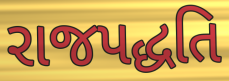
રાજપદ્ધતિ